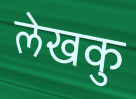
लेखकु